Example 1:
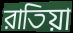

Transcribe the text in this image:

রাতিয়া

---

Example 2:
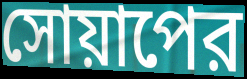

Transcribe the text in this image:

সোয়াপের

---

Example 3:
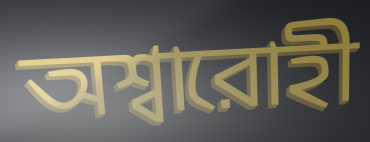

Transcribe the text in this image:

অশ্বারোহী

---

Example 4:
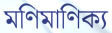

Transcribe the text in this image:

মণিমাণিক্য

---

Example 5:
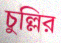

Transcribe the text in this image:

চুল্লির